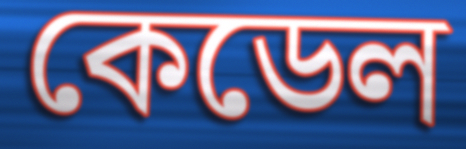
কেডেল